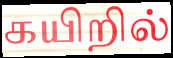
கயிறில்